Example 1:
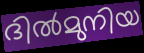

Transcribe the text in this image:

ദിൽമുനിയ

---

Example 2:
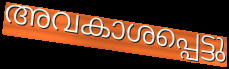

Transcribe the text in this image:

അവകാശപ്പെട്ടു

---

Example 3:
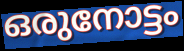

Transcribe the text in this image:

ഒരുനോട്ടം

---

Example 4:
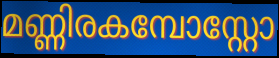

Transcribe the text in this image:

മണ്ണിരകമ്പോസ്റ്റോ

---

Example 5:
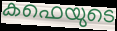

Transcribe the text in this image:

കഫെയുടെ